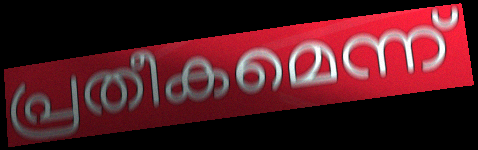
പ്രതീകമെന്ന്